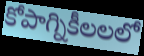
కోపాగ్నికీలలలో